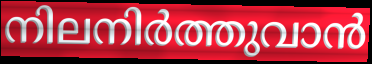
നിലനിർത്തുവാൻ